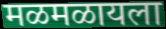
मळमळायला